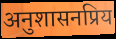
अनुशासनप्रिय